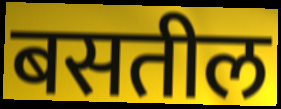
बसतील